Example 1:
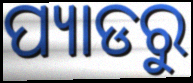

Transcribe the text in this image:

ପ୍ୟାଡରୁ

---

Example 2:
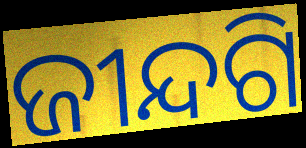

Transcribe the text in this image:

ଜୀନ୍ଦଗି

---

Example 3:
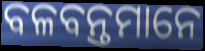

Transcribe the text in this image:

ବଳବନ୍ତମାନେ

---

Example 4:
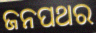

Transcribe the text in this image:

ଜନପଥର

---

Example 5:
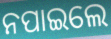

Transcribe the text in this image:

ନପାଇଲେ